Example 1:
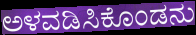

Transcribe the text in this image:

ಅಳವಡಿಸಿಕೊಂಡನು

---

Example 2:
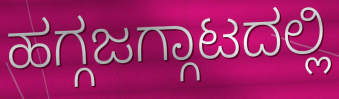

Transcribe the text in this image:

ಹಗ್ಗಜಗ್ಗಾಟದಲ್ಲಿ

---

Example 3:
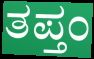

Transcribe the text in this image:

ತಪ್ತಂ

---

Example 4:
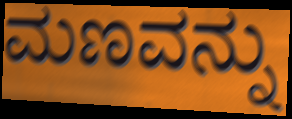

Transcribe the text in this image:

ಮಣವನ್ನು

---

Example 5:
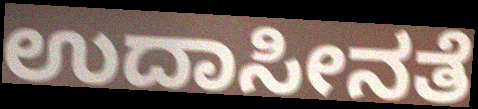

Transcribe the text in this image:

ಉದಾಸೀನತೆ